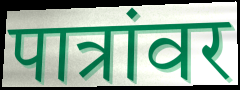
पात्रांवर